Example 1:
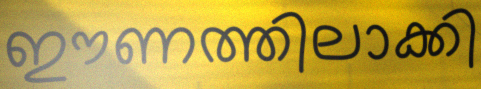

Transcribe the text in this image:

ഈണത്തിലാക്കി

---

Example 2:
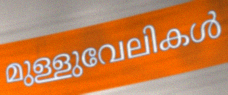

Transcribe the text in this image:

മുള്ളുവേലികൾ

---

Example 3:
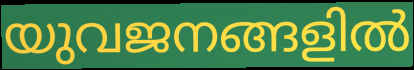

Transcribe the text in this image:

യുവജനങ്ങളിൽ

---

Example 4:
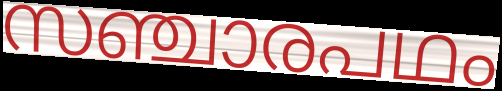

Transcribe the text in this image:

സഞ്ചാരപഥം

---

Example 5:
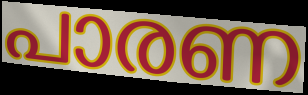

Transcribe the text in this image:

പാരണ